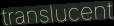
translucent